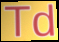
Td